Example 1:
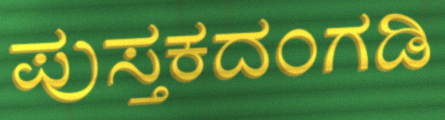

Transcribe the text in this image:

ಪುಸ್ತಕದಂಗಡಿ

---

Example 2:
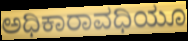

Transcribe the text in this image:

ಅಧಿಕಾರಾವಧಿಯೂ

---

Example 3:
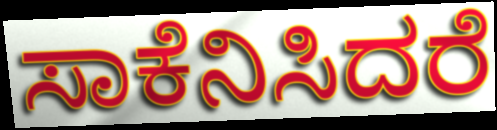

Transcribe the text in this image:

ಸಾಕೆನಿಸಿದರೆ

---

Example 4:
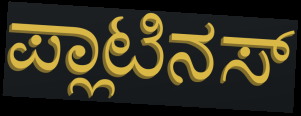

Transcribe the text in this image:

ಪ್ಲಾಟಿನಸ್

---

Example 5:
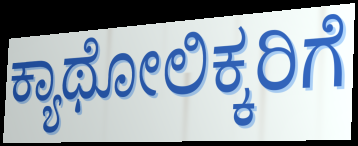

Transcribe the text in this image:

ಕ್ಯಾಥೋಲಿಕ್ಕರಿಗೆ